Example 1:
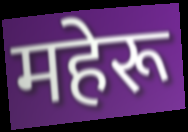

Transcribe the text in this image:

महेरू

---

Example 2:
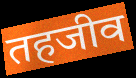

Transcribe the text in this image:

तहजीव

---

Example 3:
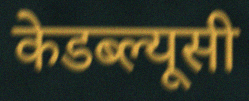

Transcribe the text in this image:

केडब्ल्यूसी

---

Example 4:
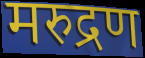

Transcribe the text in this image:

मरुद्रण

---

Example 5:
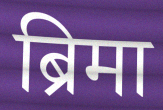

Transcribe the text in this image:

ब्रिमा